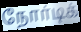
நோர்டிக்